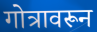
गोत्रावरून